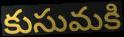
కుసుమకి